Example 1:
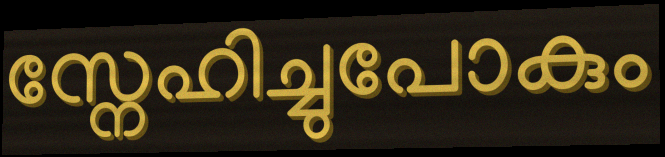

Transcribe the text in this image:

സ്നേഹിച്ചുപോകും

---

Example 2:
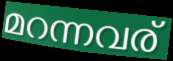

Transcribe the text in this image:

മറന്നവര്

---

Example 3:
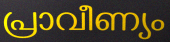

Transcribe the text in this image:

പ്രാവീണ്യം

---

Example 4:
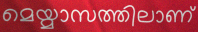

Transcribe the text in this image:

മെയ്മാസത്തിലാണ്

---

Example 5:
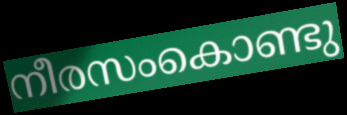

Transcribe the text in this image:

നീരസംകൊണ്ടു